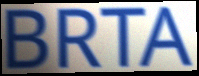
BRTA